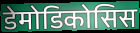
डेमोडिकोसिस